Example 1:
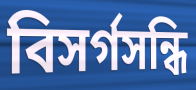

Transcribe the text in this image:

বিসর্গসন্ধি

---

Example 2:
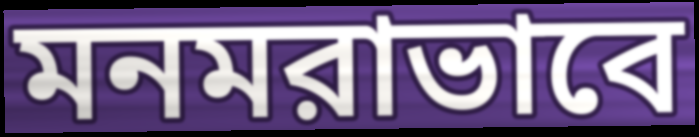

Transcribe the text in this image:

মনমরাভাবে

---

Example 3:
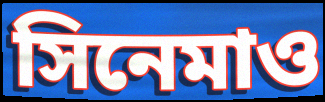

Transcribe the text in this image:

সিনেমাও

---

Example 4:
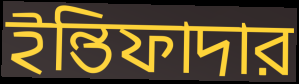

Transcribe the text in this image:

ইন্তিফাদার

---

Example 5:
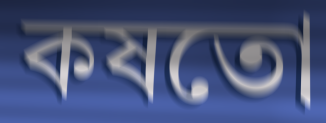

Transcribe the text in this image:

কষতো